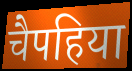
चैपहिया